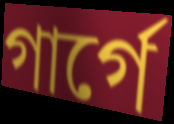
গাৰ্গে